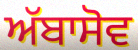
ਅੱਬਾਸੋਵ